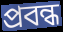
প্রবন্ধ